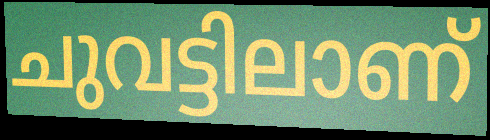
ചുവട്ടിലാണ്